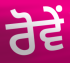
ਰੋਵੇਂ